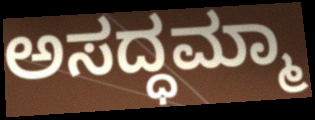
ಅಸದ್ಧಮ್ಮಾ